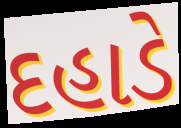
દહાડે